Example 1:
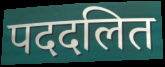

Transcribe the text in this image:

पददलित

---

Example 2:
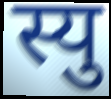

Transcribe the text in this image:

स्यु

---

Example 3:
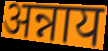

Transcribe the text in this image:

अन्नाय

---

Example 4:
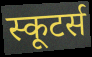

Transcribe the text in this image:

स्कूटर्स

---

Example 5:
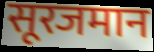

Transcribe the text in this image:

सूरजमान